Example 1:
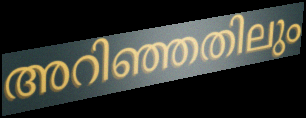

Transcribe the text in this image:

അറിഞ്ഞതിലും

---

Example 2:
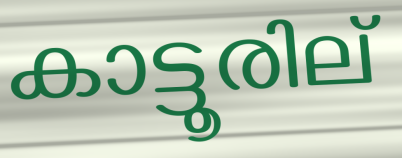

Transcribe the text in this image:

കാട്ടൂരില്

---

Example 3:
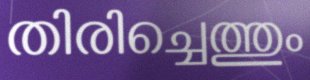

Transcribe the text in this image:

തിരിച്ചെത്തും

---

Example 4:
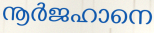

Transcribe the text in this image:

നൂർജഹാനെ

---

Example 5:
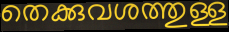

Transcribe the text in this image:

തെക്കുവശത്തുള്ള